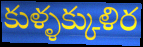
కుళ్ళక్కుళిర